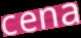
cena